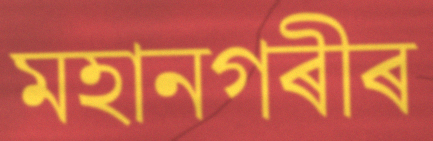
মহানগৰীৰ